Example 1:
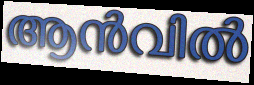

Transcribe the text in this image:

ആൻവിൽ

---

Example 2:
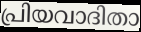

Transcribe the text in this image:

പ്രിയവാദിതാ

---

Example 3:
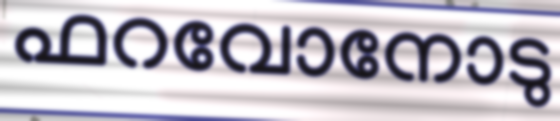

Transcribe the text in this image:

ഫറവോനോടു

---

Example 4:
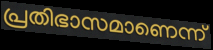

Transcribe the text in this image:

പ്രതിഭാസമാണെന്ന്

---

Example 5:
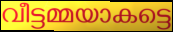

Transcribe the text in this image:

വീട്ടമ്മയാകട്ടെ